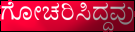
ಗೋಚರಿಸಿದ್ದವು